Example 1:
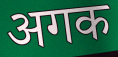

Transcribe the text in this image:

अगक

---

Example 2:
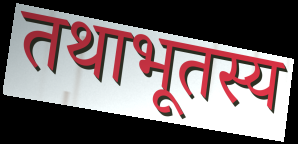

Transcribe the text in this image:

तथाभूतस्य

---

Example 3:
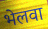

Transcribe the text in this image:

भेलवा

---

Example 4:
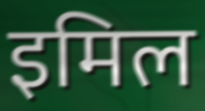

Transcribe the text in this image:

इमिल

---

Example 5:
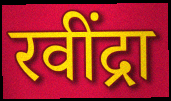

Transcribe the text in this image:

रवींद्रा